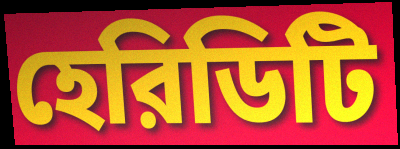
হেরিডিটি